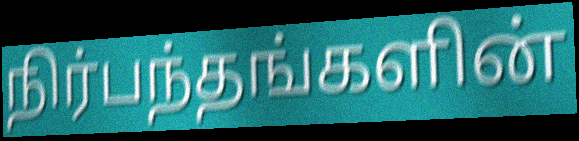
நிர்பந்தங்களின்